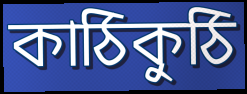
কাঠিকুঠি